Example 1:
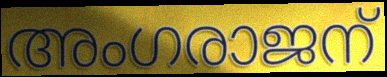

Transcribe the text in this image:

അംഗരാജന്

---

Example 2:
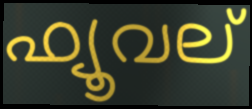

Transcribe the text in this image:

ഫ്യൂവല്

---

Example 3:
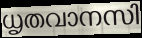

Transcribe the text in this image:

ധൃതവാനസി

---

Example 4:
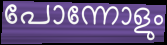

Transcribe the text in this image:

പോന്നോളും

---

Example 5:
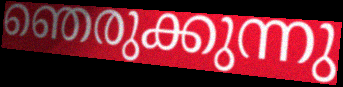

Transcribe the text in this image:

ഞെരുക്കുന്നു